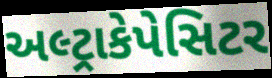
અલ્ટ્રાકેપેસિટર